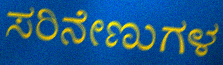
ಸರಿನೇಣುಗಳ